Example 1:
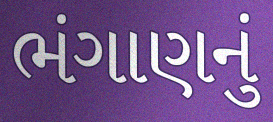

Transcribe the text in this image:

ભંગાણનું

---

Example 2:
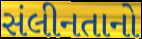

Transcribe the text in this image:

સંલીનતાનો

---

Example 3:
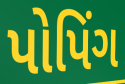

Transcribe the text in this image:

પોપિંગ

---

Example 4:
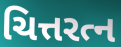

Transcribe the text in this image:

ચિત્તરત્ન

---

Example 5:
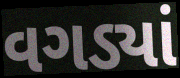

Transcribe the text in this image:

વગડ્યાં